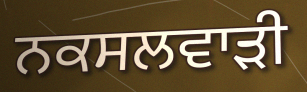
ਨਕਸਲਵਾੜੀ